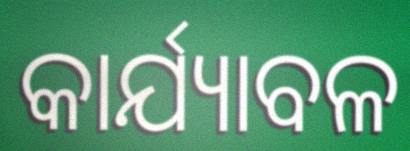
କାର୍ଯ୍ୟାବଳ